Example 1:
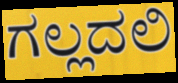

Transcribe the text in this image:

ಗಲ್ಲದಲಿ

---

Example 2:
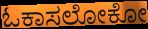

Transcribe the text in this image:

ಓಕಾಸಲೋಕೋ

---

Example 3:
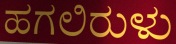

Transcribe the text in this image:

ಹಗಲಿರುಳು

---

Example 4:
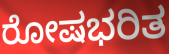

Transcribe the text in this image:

ರೋಷಭರಿತ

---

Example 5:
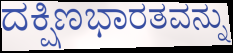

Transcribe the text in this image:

ದಕ್ಷಿಣಭಾರತವನ್ನು